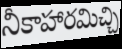
నీకాహారమిచ్చి